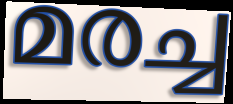
മരച്ച